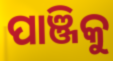
ପାଞ୍ଜିକୁ